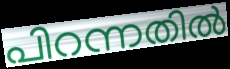
പിറന്നതിൽ